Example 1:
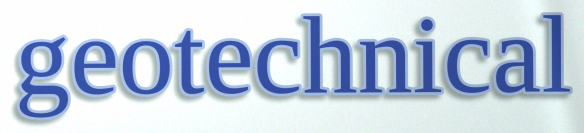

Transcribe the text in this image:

geotechnical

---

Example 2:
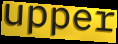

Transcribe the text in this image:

upper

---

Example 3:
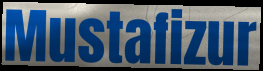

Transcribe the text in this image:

Mustafizur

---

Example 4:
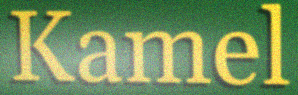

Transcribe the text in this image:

Kamel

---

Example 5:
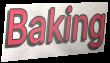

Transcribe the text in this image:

Baking